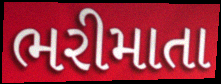
ભરીમાતા